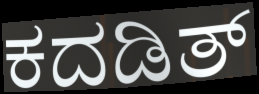
ಕದಡಿತ್